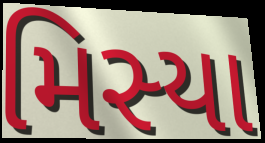
મિસ્યા